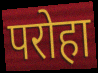
परोहा